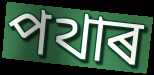
পথাৰ